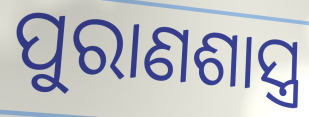
ପୁରାଣଶାସ୍ତ୍ର